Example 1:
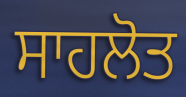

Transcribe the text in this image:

ਸਾਹਲੋਤ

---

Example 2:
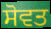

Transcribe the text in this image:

ਸੋਵਤ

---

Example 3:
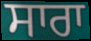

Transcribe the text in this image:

ਸਾਰਾ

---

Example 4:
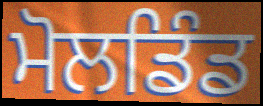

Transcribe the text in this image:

ਮੋਲਡਿੰਡ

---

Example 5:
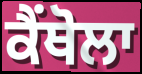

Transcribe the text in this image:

ਕੈਂਥੋਲਾ